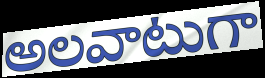
అలవాటుగా